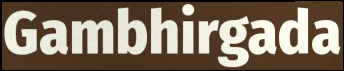
Gambhirgada